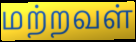
மற்றவள்